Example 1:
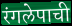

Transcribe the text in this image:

रंगलेपाची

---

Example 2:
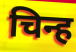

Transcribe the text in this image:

चिन्ह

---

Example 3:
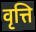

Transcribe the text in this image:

वृत्ति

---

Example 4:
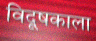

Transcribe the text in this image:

विदूषकाला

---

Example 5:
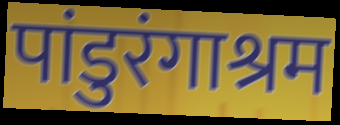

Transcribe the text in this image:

पांडुरंगाश्रम